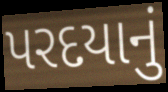
પરદયાનું